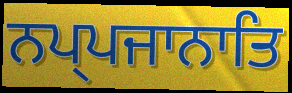
ਨਪ੍ਪਜਾਨਾਤਿ